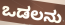
ಒಡಲನು